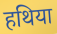
हथिया